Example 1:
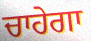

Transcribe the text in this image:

ਚਾਹੇਗਾ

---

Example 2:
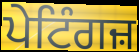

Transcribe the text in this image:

ਪੇਟਿੰਗਜ਼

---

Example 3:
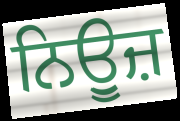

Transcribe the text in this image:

ਨਿਉੂਜ਼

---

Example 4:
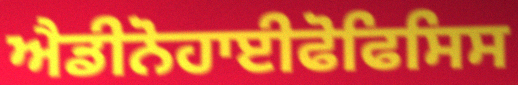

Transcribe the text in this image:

ਐਡੀਨੋਹਾਈਫੋਫਿਸਿਸ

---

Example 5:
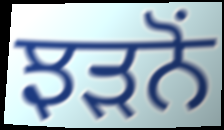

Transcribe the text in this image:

ਝੜਨੋਂ